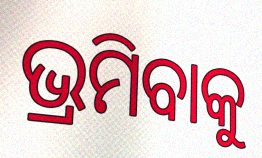
ଭ୍ରମିବାକୁ